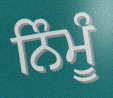
ਨਿੰਮੂੰ